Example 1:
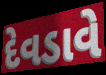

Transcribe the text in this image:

દેવડાવે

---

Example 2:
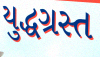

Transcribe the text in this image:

યુદ્ધગ્રસ્ત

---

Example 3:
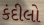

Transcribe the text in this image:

કંદીલો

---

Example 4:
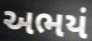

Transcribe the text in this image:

અભયં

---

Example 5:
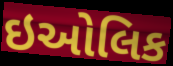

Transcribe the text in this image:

ઇઓલિક